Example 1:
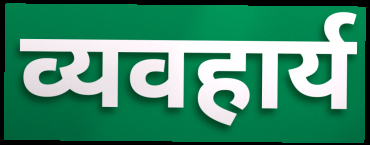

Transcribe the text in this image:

व्यवहार्य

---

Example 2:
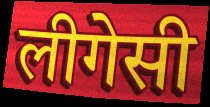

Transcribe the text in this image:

लीगेसी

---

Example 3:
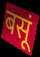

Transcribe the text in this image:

बसूं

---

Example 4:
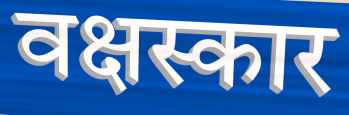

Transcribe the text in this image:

वक्षस्कार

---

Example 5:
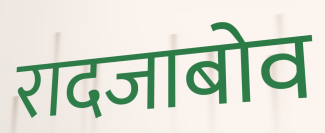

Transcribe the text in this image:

रादजाबोव